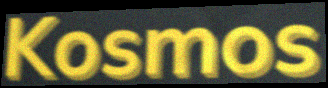
Kosmos